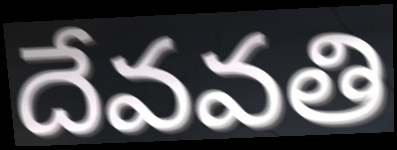
దేవవతి